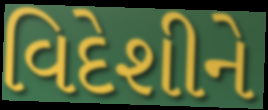
વિદેશીને